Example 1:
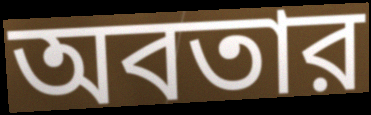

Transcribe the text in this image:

অবতার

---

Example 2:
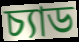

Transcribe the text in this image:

চ্যাড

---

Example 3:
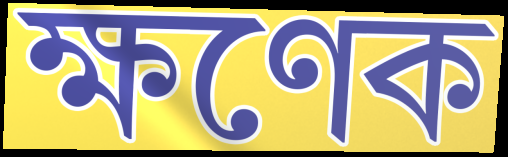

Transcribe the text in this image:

ক্ষণেক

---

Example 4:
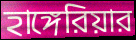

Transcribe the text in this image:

হাঙ্গেরিয়ার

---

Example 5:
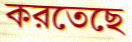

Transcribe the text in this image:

করতেছে